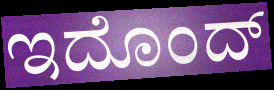
ಇದೊಂದ್